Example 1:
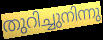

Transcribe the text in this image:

തുറിച്ചുനിന്നു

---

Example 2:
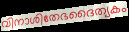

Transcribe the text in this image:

വിനാശിതേഭദൈത്യകം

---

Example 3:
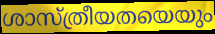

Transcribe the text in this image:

ശാസ്ത്രീയതയെയും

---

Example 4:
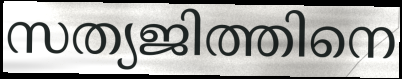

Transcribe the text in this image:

സത്യജിത്തിനെ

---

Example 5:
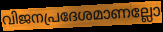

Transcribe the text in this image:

വിജനപ്രദേശമാണല്ലോ